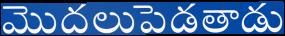
మొదలుపెడతాడు